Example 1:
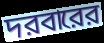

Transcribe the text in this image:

দরবারের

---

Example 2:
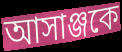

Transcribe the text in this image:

আসাঞ্জকে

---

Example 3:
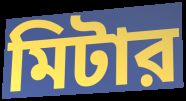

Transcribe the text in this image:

মিটার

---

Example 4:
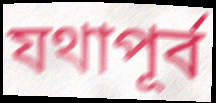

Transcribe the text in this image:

যথাপূর্ব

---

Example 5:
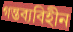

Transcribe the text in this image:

গন্তব্যবিহীন